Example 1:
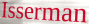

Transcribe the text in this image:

Isserman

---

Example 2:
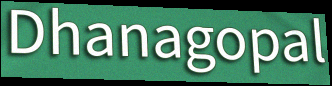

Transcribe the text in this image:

Dhanagopal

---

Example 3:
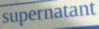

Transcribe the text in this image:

supernatant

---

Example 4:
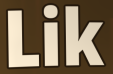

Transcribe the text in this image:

Lik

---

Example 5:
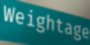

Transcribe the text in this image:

Weightage